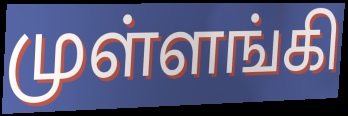
முள்ளங்கி